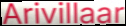
Arivillaar